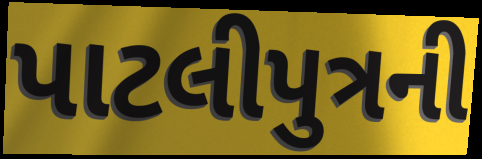
પાટલીપુત્રની